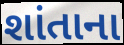
શાંતાના